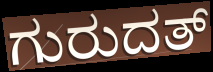
ಗುರುದತ್